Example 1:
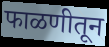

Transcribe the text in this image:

फाळणीतून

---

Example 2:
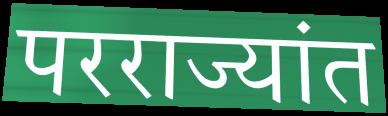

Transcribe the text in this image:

परराज्यांत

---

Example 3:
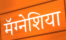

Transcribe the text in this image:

मॅग्‍नेशिया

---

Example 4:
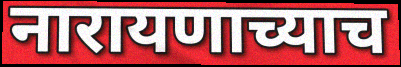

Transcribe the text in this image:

नारायणाच्याच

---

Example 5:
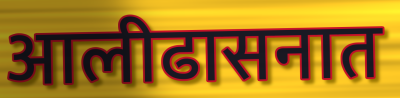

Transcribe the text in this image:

आलीढासनात